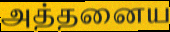
அத்தனைய